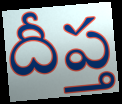
దీప్త